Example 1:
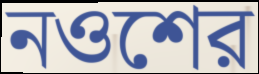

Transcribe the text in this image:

নওশের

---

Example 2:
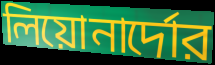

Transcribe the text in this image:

লিয়োনার্দোর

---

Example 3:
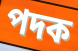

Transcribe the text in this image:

পদক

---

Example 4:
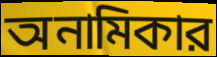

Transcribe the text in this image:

অনামিকার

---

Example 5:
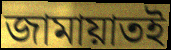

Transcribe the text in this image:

জামায়াতই